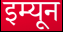
इम्यून